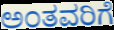
ಅಂತವರಿಗೆ